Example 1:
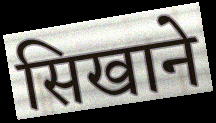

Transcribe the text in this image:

सिखाने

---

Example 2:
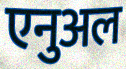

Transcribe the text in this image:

एनुअल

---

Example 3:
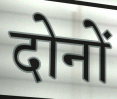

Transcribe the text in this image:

दोनों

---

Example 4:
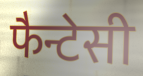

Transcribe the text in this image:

फैन्टेसी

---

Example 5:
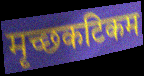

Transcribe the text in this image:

मृच्छकटिकम